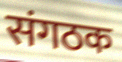
संगठक